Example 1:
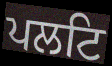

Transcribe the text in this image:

ਪਲਟਿ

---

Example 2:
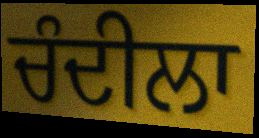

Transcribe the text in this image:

ਚੰਦੀਲਾ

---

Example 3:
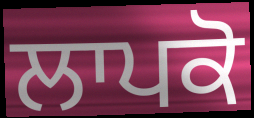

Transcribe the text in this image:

ਲਾਪਕੋ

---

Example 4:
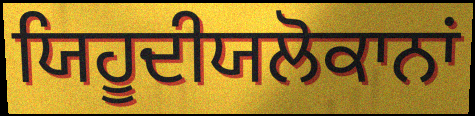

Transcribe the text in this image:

ਯਿਹੂਦੀਯਲੋਕਾਨਾਂ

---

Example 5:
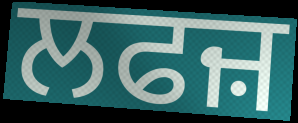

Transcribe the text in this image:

ਲਫਜ਼